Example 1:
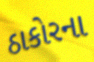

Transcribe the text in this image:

ઠાકોરના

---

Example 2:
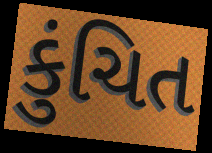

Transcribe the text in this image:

કુંચિત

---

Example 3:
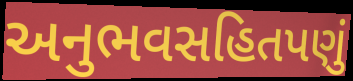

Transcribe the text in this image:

અનુભવસહિતપણું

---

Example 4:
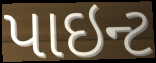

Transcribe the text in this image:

પાઇન્ટ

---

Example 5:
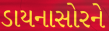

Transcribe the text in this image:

ડાયનાસોરને